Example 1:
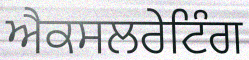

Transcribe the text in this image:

ਐਕਸਲਰੇਟਿੰਗ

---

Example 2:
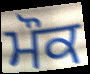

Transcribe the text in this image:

ਮੌਕ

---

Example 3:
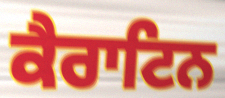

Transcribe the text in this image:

ਕੈਰਾਟਿਨ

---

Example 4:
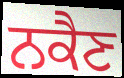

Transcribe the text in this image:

ਨਕੈਣ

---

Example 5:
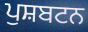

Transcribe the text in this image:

ਪੁਸ਼ਬਟਨ